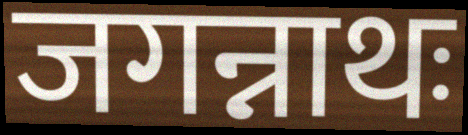
जगन्नाथः